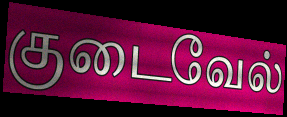
குடைவேல்